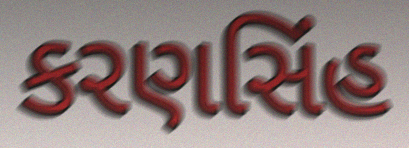
કરણસિંહ